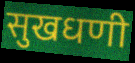
सुखधणी